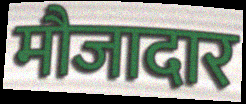
मौजादार